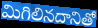
మిగిలినదానితో